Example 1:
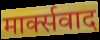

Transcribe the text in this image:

मार्क्‍सवाद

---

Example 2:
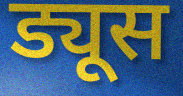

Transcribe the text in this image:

ड्यूस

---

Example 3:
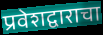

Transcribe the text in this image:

प्रवेशद्वाराचा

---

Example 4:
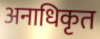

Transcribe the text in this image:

अनाधिकृत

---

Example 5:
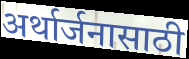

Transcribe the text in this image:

अर्थार्जनासाठी